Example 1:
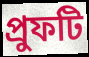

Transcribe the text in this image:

প্রুফটি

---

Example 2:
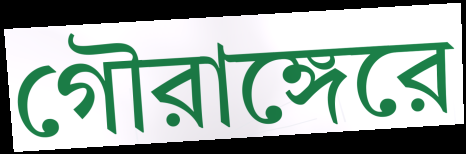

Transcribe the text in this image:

গৌরাঙ্গেরে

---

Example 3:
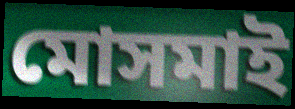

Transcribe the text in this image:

মোসমাই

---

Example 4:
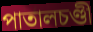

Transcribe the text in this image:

পাতালচণ্ডী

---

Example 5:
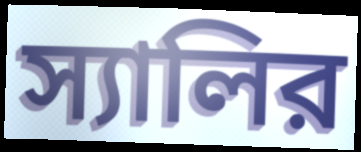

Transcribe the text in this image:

স্যালির